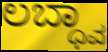
ಲಬ್ಧ್ವಾ